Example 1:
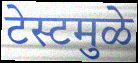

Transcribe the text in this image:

टेस्टमुळे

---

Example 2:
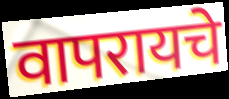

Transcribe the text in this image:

वापरायचे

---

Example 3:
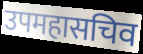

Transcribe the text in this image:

उपमहासचिव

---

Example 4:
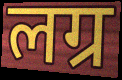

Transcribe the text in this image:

लग्र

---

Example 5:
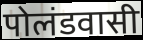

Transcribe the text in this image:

पोलंडवासी